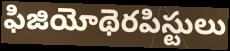
ఫిజియోథెరపిస్టులు